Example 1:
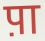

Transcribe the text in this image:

प़ा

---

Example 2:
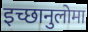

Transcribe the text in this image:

इच्छानुलोमा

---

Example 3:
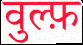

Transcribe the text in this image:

वुल्फ़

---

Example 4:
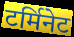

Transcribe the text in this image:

टर्मिनेट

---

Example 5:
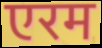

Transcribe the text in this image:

एरम